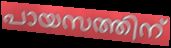
പായസത്തിന്